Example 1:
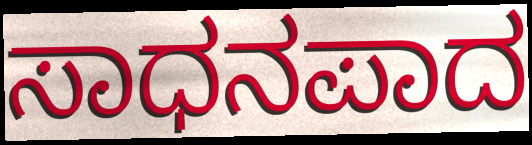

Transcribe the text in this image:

ಸಾಧನಪಾದ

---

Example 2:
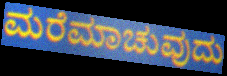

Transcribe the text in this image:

ಮರೆಮಾಚುವುದು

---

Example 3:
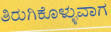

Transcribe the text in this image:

ತಿರುಗಿಕೊಳ್ಳುವಾಗ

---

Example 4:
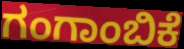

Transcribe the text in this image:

ಗಂಗಾಂಬಿಕೆ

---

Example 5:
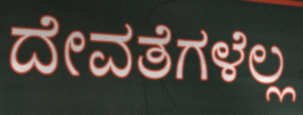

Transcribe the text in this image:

ದೇವತೆಗಳೆಲ್ಲ